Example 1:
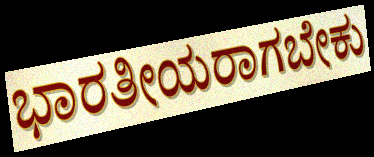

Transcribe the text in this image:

ಭಾರತೀಯರಾಗಬೇಕು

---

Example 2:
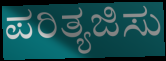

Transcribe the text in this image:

ಪರಿತ್ಯಜಿಸು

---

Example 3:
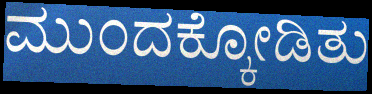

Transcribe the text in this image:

ಮುಂದಕ್ಕೋಡಿತು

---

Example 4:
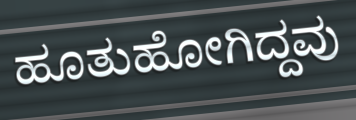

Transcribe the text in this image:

ಹೂತುಹೋಗಿದ್ದವು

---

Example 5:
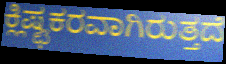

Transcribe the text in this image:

ಕ್ಲಿಷ್ಟಕರವಾಗಿರುತ್ತದೆ